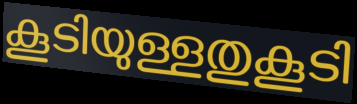
കൂടിയുള്ളതുകൂടി